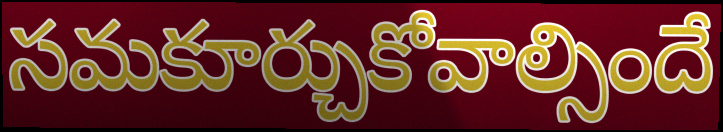
సమకూర్చుకోవాల్సిందే